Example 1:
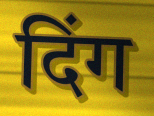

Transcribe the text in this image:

दिंग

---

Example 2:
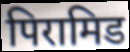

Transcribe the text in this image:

पिरामिड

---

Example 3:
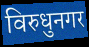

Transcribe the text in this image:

विरुधुनगर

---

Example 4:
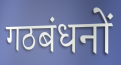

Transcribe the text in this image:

गठबंधनों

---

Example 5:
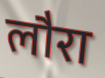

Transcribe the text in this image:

लौरा